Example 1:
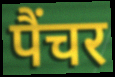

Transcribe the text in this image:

पैंचर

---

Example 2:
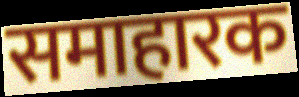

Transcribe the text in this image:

समाहारक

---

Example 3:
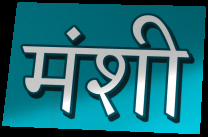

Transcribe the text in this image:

मंशी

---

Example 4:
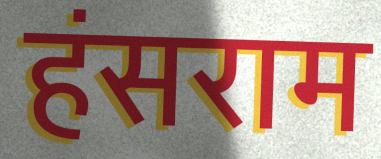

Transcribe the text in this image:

हंसराम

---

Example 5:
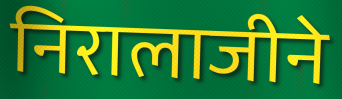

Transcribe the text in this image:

निरालाजीने